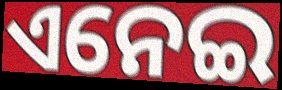
ଏନେଇ